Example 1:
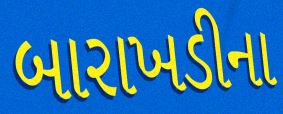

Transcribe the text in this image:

બારાખડીના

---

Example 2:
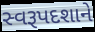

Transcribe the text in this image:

સ્વરૂપદશાને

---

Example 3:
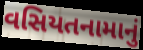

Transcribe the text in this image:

વસિયતનામાનું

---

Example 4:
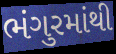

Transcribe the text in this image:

ભંગુરમાંથી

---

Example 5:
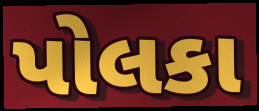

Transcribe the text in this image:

પોલકા